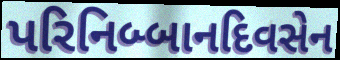
પરિનિબ્બાનદિવસેન